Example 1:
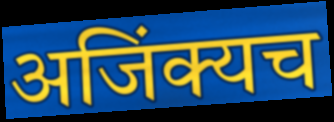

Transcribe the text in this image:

अजिंक्यच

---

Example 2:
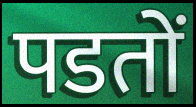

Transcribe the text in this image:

पडतों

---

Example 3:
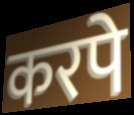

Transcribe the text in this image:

करपे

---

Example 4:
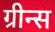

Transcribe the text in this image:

ग्रीन्स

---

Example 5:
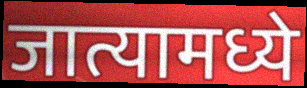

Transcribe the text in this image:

जात्यामध्ये